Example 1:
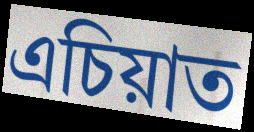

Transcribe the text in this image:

এচিয়াত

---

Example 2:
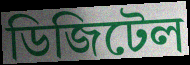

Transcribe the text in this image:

ডিজিটেল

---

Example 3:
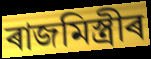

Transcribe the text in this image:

ৰাজমিস্ত্ৰীৰ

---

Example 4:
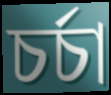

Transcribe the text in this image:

চৰ্চা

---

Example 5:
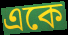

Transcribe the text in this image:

একে